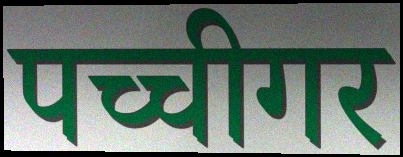
पच्चीगर